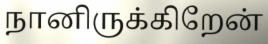
நானிருக்கிறேன்